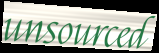
unsourced